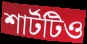
শার্টটিও